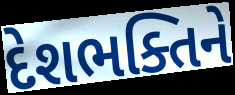
દેશભક્તિને